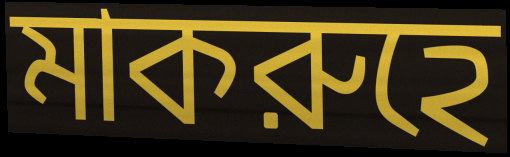
মাকরুহে